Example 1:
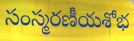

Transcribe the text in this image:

సంస్మరణీయశోభ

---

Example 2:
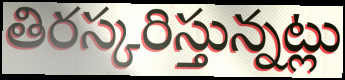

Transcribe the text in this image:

తిరస్కరిస్తున్నట్లు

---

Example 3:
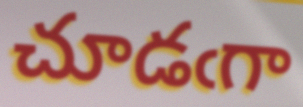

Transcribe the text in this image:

చూడఁగా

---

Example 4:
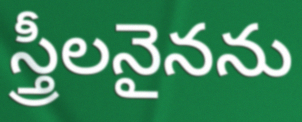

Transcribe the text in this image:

స్త్రీలనైనను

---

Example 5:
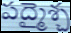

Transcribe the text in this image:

పద్మైశ్చ